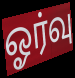
ஓர்வு